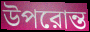
উপরোন্ত